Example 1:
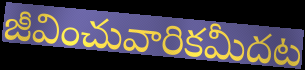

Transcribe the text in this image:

జీవించువారికమీదట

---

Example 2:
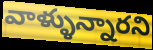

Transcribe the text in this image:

వాళ్ళున్నారని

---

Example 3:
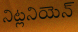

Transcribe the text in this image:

నిట్లనియెన్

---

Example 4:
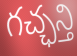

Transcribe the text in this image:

గచ్ఛన్తి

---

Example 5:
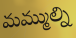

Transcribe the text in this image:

మమ్ముల్ని